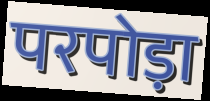
परपोड़ा